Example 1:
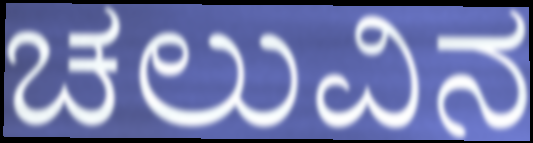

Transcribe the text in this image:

ಚಲುವಿನ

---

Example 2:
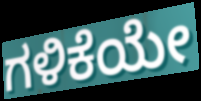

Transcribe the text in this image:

ಗಳಿಕೆಯೇ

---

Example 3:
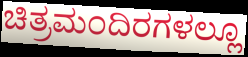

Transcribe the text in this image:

ಚಿತ್ರಮಂದಿರಗಳಲ್ಲೂ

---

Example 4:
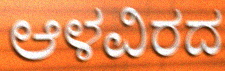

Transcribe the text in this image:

ಆಳವಿರದ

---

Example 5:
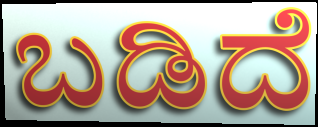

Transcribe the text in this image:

ಬಡಿದೆ